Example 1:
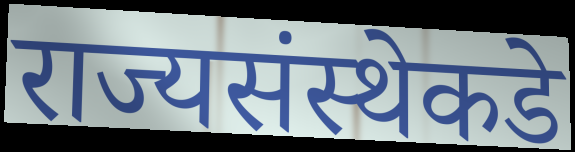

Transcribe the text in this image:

राज्यसंस्थेकडे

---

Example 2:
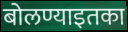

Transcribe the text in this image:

बोलण्याइतका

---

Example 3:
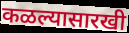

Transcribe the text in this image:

कळल्यासारखी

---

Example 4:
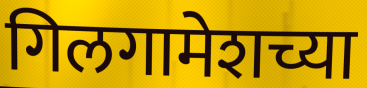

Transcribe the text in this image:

गिलगामेशच्या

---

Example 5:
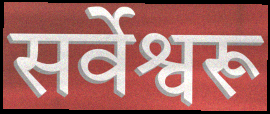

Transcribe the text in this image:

सर्वेश्वरू